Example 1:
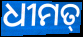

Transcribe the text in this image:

ଧୀମତ୍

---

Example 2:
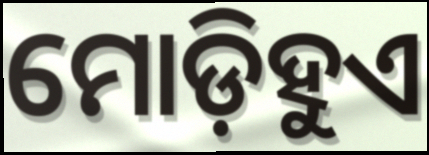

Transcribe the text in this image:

ମୋଡ଼ିହୁଏ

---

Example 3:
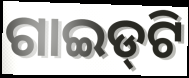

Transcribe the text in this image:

ଗାଇଡ୍‌ଟି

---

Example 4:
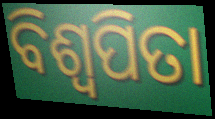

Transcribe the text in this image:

ବିଶ୍ୱପିତା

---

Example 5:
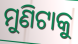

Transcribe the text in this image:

ମୁଣିଟାକୁ